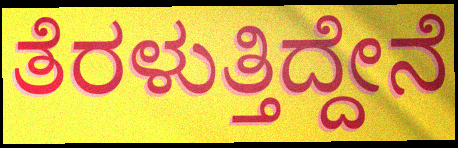
ತೆರಳುತ್ತಿದ್ದೇನೆ